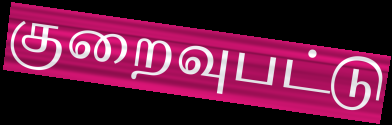
குறைவுபட்டு